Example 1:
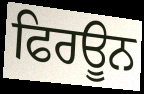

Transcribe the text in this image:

ਫਿਰਊਨ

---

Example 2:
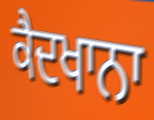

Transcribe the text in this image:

ਕੈਦਖਾਨਾ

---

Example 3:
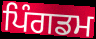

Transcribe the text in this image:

ਪਿੰਗਡਮ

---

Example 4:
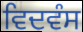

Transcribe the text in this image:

ਵਿਦਵੰਸ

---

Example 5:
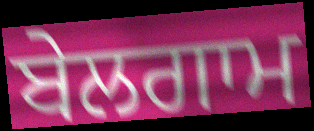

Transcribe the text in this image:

ਬੇਲਗਾਮ